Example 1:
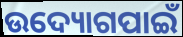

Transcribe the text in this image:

ଉଦ୍ୟୋଗପାଇଁ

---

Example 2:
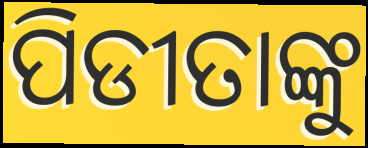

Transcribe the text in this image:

ପିଡୀତାଙ୍କୁ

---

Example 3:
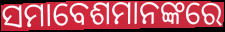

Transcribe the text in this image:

ସମାବେଶମାନଙ୍କରେ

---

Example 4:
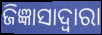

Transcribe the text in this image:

ଜିଜ୍ଞାସାଦ୍ୱାରା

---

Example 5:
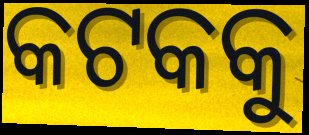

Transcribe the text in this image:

କଟକକୁ